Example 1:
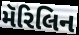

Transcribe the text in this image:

મૅરિલિન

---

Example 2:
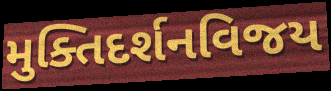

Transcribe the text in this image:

મુક્તિદર્શનવિજય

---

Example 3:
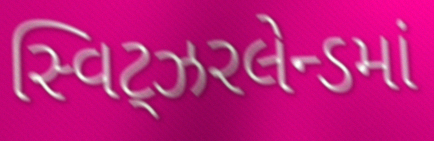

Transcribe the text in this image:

સ્વિટ્ઝરલેન્ડમાં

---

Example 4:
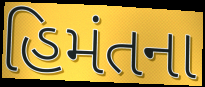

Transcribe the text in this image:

હિમંતના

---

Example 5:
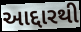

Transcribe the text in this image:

આદ્દારથી